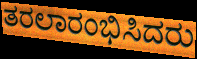
ತರಲಾರಂಭಿಸಿದರು